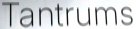
Tantrums